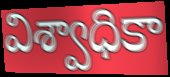
విశ్వాధికా